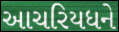
આચરિયધને